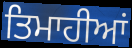
ਤਿਮਾਹੀਆਂ